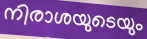
നിരാശയുടെയും